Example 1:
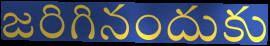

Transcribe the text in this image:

జరిగినందుకు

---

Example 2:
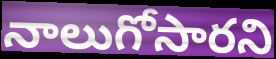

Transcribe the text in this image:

నాలుగోసారని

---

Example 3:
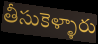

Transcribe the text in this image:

తీసుకెళ్ళారు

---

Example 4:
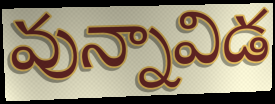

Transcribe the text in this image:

వున్నావిడ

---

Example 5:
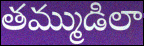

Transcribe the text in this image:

తమ్ముడిలా